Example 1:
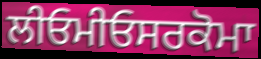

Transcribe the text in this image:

ਲੀਓਮੀਓਸਰਕੋਮਾ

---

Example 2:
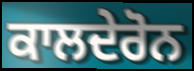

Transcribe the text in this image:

ਕਾਲਦੇਰੋਨ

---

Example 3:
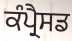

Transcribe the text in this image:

ਕੰਪ੍ਰੈਸਡ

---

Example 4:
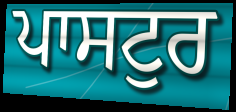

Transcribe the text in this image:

ਪਾਸਟੁਰ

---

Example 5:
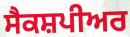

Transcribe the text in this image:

ਸੈਕਸ਼ਪੀਅਰ